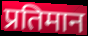
प्रतिमान